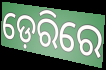
ଡ଼େରିରେ